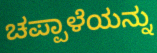
ಚಪ್ಪಾಳೆಯನ್ನು